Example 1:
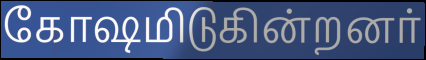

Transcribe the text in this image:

கோஷமிடுகின்றனர்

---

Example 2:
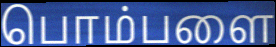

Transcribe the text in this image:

பொம்பளை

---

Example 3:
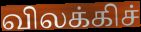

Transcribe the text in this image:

விலக்கிச்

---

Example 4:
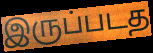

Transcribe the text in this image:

இருப்படத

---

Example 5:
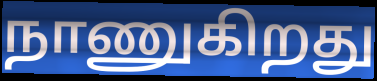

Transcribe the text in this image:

நாணுகிறது